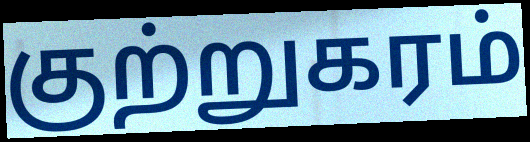
குற்றுகரம்